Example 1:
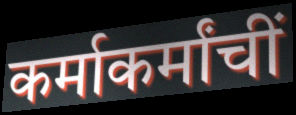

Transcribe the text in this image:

कर्माकर्मांचीं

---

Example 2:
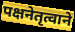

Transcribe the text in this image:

पक्षनेतृत्वाने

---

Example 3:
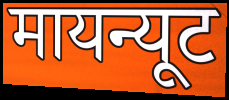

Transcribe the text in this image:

मायन्यूट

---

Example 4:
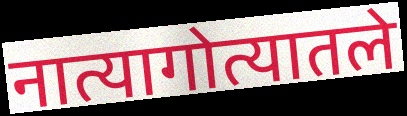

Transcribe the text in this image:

नात्यागोत्यातले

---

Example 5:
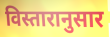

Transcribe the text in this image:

विस्तारानुसार